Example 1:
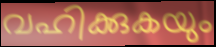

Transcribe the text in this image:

വഹിക്കുകയും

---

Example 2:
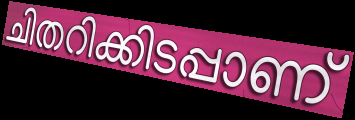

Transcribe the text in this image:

ചിതറിക്കിടപ്പാണ്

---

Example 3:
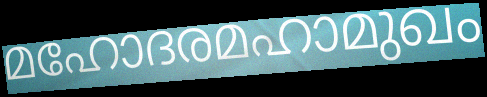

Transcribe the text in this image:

മഹോദരമഹാമുഖം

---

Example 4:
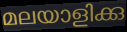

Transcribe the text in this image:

മലയാളിക്കു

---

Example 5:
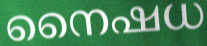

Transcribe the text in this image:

നൈഷധ